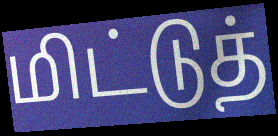
மிட்டுத்